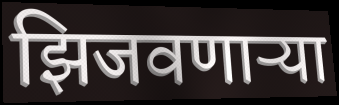
झिजवणाऱ्या